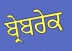
ਬ੍ਰੇਬਰੇਕ